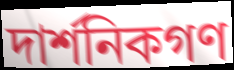
দার্শনিকগণ